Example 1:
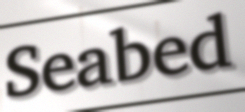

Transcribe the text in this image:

Seabed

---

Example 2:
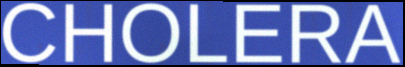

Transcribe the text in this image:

CHOLERA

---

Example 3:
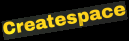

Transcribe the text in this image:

Createspace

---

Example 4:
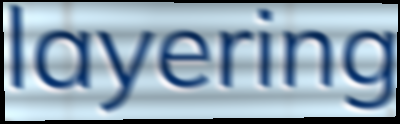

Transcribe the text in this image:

layering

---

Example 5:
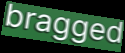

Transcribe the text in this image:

bragged